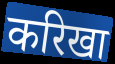
करिखा